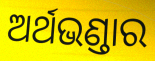
ଅର୍ଥଭଣ୍ଡାର